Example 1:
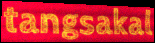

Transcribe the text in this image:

tangsakal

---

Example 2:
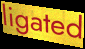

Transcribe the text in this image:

ligated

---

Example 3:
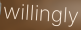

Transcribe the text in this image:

willingly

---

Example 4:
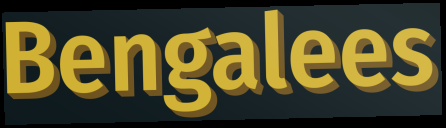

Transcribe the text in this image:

Bengalees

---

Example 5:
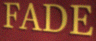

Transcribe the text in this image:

FADE